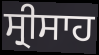
ਸ੍ਰੀਸਾਹ